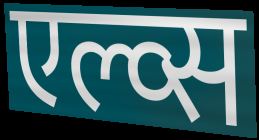
एल्व्स